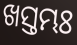
ଖସ୍ତମ୍ଭଃ